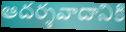
ఆదర్శవాదానికి